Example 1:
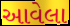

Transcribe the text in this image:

આવેલા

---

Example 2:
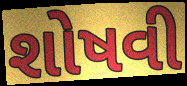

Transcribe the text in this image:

શોષવી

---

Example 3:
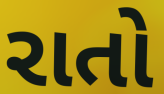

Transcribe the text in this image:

રાતો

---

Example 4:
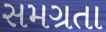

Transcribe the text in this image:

સમગ્રતા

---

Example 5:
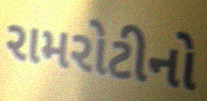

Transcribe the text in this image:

રામરોટીનો